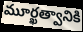
మూర్ఖత్వానికి